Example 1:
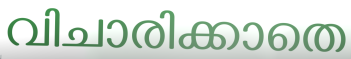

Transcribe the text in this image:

വിചാരിക്കാതെ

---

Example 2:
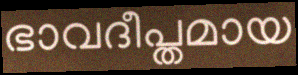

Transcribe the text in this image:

ഭാവദീപ്തമായ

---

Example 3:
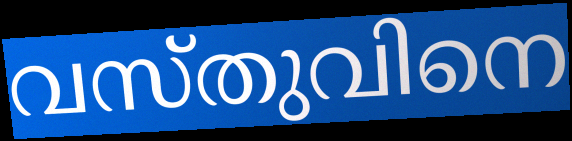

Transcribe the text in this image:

വസ്തുവിനെ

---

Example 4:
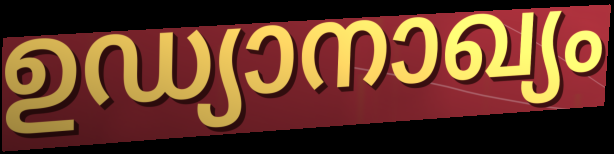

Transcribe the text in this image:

ഉഡ്യാനാഖ്യം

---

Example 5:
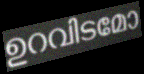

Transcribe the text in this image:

ഉറവിടമോ